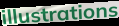
illustrations